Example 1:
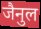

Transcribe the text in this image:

जैनुल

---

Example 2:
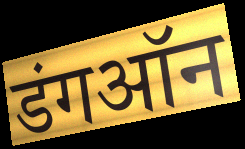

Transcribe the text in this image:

डंगऑन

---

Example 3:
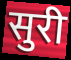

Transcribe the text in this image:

सुरी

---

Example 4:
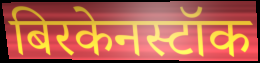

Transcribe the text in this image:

बिरकेनस्टॉक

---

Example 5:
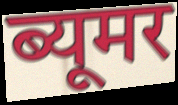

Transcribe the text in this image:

ब्यूमर